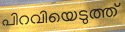
പിറവിയെടുത്ത്